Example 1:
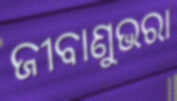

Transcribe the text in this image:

ଜୀବାଣୁଭରା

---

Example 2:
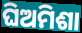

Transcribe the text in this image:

ଘିଅମିଶା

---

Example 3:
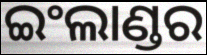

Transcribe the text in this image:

ଇଂଲାଣ୍ଡର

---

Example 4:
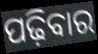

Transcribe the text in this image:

ପଢ଼ିବାର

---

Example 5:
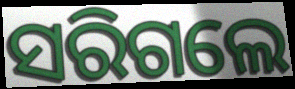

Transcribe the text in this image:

ସରିଗଲେ